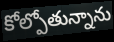
కోల్పోతున్నాను